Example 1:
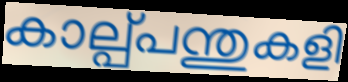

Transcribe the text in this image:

കാല്പ്പന്തുകളി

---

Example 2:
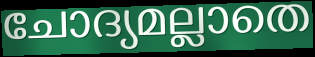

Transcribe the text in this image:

ചോദ്യമല്ലാതെ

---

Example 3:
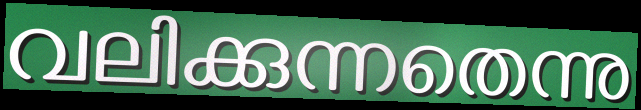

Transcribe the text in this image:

വലിക്കുന്നതെന്നു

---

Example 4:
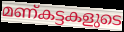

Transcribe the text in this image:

മണ്കട്ടകളുടെ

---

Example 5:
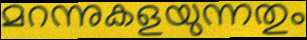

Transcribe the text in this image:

മറന്നുകളയുന്നതും